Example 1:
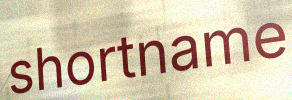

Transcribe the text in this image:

shortname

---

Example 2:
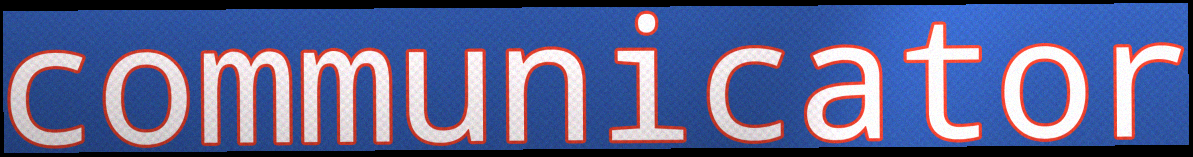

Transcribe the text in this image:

communicator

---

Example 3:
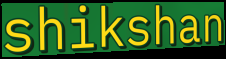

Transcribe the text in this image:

shikshan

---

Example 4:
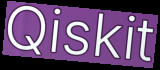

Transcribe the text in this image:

Qiskit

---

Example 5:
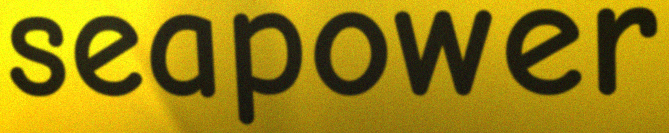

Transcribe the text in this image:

seapower